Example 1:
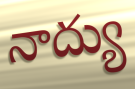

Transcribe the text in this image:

నాద్యు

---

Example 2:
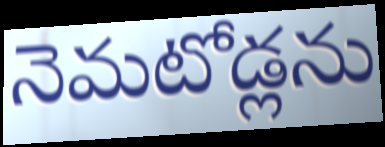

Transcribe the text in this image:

నెమటోడ్లను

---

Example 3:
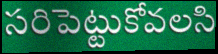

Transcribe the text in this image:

సరిపెట్టుకోవలసి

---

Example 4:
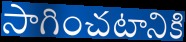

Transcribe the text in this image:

సాగించటానికి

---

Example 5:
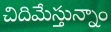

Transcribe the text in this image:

చిదిమేస్తున్నాం